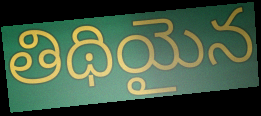
తిథియైన